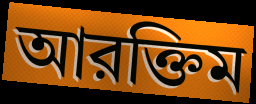
আরক্তিম